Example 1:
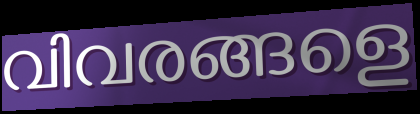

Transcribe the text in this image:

വിവരങ്ങളെ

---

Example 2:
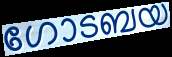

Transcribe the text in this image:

ഗോടബയ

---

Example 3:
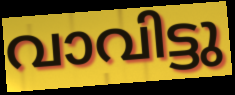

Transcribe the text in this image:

വാവിട്ടു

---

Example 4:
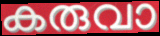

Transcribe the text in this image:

കരുവാ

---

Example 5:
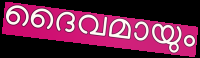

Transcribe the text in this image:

ദൈവമായും